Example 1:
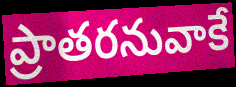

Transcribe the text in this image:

ప్రాతరనువాకే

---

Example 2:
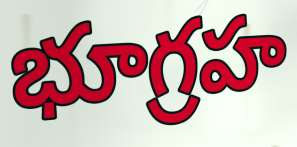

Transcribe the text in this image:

భూగ్రహ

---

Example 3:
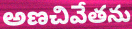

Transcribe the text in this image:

అణచివేతను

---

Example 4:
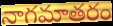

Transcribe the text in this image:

నాగమాతరం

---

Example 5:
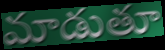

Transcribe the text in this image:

మాడుతూ